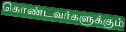
கொண்டவர்களுக்கும்